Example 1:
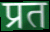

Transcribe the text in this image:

प्रत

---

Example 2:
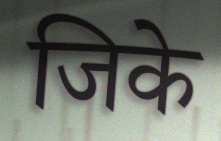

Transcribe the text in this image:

जिके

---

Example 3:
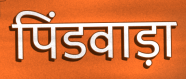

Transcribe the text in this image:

पिंडवाड़ा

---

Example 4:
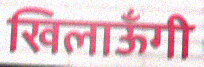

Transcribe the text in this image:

खिलाऊँगी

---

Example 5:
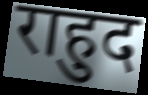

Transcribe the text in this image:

राहुद